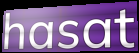
hasat